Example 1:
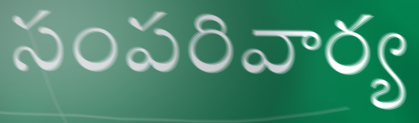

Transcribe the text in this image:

సంపరివార్య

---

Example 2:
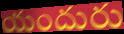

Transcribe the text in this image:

యందురు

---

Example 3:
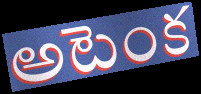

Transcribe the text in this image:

అటెంక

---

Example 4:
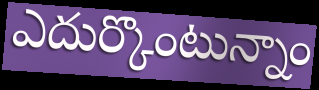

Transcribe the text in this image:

ఎదుర్కొంటున్నాం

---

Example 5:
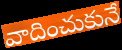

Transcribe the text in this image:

వాదించుకునే